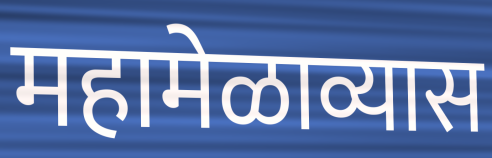
महामेळाव्यास